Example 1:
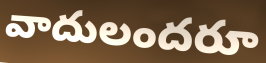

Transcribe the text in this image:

వాదులందరూ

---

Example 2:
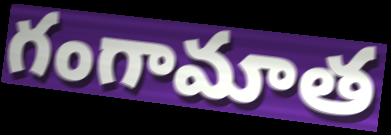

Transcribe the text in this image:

గంగామాత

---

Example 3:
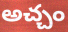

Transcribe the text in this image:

అచ్చం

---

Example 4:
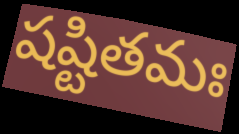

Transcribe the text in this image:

షష్టితమః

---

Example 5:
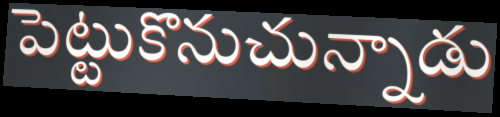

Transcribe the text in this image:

పెట్టుకొనుచున్నాడు